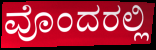
ವೊಂದರಲ್ಲಿ